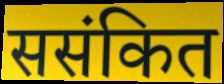
ससंकित